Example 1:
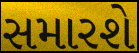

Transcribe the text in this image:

સમારશે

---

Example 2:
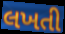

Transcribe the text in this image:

લખતી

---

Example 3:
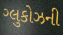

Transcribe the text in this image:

ગ્લુકોઝની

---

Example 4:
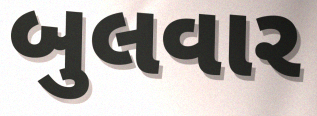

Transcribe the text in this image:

બુલવાર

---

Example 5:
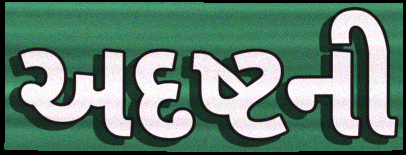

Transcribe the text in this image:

અદષ્ટની